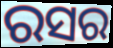
ରସର